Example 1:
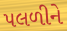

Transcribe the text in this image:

પલળીને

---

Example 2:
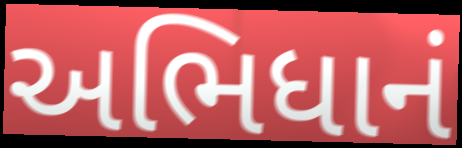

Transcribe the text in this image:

અભિધાનં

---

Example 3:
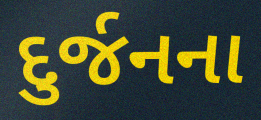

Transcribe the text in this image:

દુર્જનના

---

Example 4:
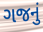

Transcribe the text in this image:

ગજનું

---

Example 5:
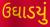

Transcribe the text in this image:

ઉઘાડયું